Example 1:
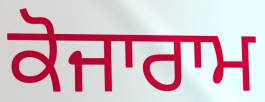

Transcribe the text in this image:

ਕੋਜਾਰਾਮ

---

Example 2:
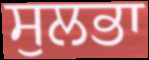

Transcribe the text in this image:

ਸੁਲਭਾ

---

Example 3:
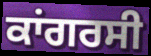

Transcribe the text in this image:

ਕਾਂਗਰਸੀ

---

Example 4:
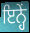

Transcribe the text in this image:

ਇਨ੍ਹੇਂ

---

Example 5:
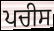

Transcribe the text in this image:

ਪਚੀਸ